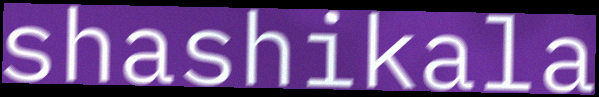
shashikala